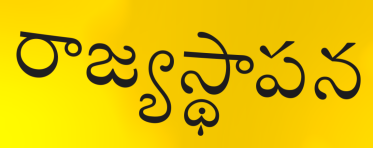
రాజ్యస్థాపన